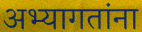
अभ्यागतांना